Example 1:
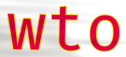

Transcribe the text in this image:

wto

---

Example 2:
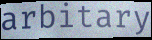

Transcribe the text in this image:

arbitary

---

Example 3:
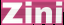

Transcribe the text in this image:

Zini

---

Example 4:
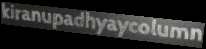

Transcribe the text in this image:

kiranupadhyaycolumn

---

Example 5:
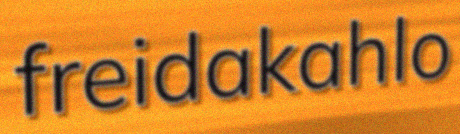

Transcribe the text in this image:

freidakahlo